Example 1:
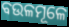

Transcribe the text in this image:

ବଉଳମୂଳେ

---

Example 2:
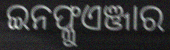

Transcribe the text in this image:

ଇନଫ୍ଳୁଏଞ୍ଜାର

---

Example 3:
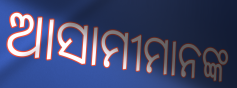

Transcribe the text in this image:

ଆସାମୀମାନଙ୍କ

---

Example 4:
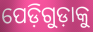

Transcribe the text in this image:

ପେଡ଼ିଗୁଡ଼ାକୁ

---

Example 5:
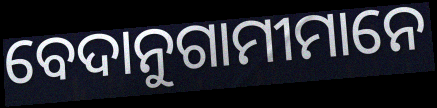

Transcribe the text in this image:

ବେଦାନୁଗାମୀମାନେ